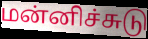
மன்னிச்சுடு